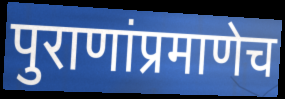
पुराणांप्रमाणेच